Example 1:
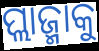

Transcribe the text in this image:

ପ୍ଲାଜ୍ମାକୁ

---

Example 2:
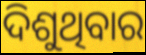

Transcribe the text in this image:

ଦିଶୁଥିବାର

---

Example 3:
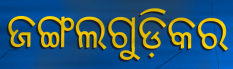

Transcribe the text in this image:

ଜଙ୍ଗଲଗୁଡ଼ିକର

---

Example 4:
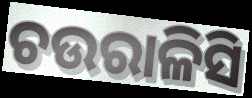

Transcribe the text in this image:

ଚଉରାଳିସି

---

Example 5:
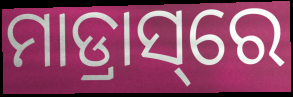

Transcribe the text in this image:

ମାଡ୍ରାସ୍‌ରେ